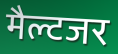
मैल्टजर